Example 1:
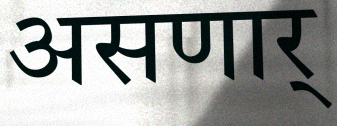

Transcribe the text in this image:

असणार्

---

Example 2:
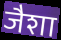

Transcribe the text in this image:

जैशा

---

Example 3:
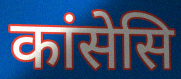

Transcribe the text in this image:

कांसेसि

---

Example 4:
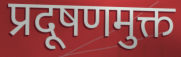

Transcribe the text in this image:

प्रदूषणमुक्त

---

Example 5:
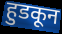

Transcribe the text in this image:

हुडकून